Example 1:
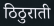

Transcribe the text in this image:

ठिठुराती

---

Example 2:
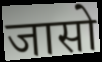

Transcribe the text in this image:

जासो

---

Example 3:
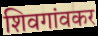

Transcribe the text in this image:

शिवगांवकर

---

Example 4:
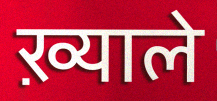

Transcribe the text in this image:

ख़्याले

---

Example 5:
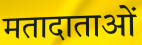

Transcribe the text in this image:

मतादाताओं